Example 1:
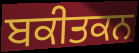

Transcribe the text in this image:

ਬਕੀਤਕਨ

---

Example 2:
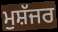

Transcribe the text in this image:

ਮੁਸ਼ੱਜਰ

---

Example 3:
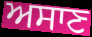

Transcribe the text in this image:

ਅਸਾਣ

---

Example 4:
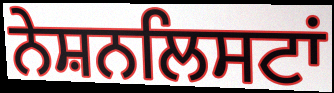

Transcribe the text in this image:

ਨੇਸ਼ਨਲਿਸਟਾਂ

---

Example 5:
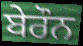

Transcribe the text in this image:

ਬੇਰੌਨ